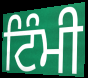
ਟਿੰਮੀ